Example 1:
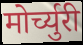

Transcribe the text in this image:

मोर्च्युरी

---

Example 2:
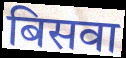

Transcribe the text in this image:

बिसवा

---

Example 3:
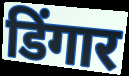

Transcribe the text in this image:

डिंगार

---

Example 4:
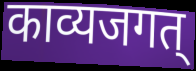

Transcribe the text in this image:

काव्यजगत्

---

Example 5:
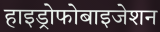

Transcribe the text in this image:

हाइड्रोफोबाइजेशन